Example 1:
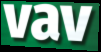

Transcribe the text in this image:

vav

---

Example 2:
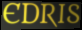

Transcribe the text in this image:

EDRIS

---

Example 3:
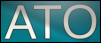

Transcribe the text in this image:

ATO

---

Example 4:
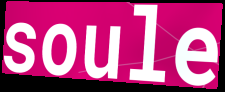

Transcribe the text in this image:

soule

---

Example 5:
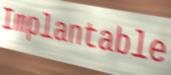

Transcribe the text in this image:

Implantable